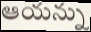
ఆయన్ను